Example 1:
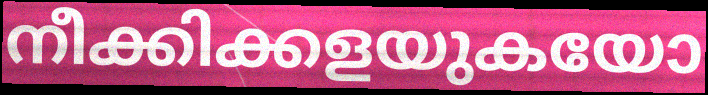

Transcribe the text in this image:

നീക്കിക്കളയുകയോ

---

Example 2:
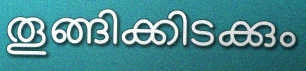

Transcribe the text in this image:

തൂങ്ങിക്കിടക്കും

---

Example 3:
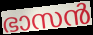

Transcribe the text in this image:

ഭാസൻ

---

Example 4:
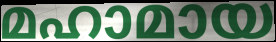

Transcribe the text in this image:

മഹാമായ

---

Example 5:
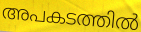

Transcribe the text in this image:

അപകടത്തിൽ